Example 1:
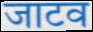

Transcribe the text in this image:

जाटव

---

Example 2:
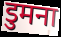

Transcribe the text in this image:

डुमना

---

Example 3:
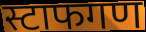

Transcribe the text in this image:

स्टाफगण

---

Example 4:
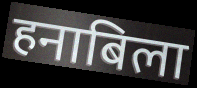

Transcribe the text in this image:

हनाबिला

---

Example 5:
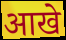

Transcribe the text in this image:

आखे